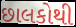
છાલકોથી